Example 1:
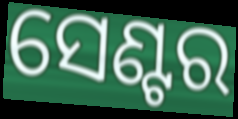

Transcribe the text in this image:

ସେଣ୍ଟର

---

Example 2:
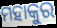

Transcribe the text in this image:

ମହାକୁର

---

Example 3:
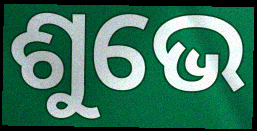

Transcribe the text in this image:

ଶୁଭେ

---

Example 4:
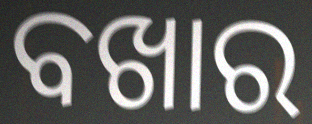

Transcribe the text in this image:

ବଖାର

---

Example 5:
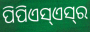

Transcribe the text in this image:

ପିପିଏସ୍ଏସ୍‌ର